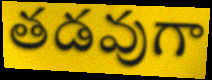
తడవుగా